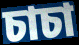
চাচা